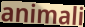
animali